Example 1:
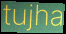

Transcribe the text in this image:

tujha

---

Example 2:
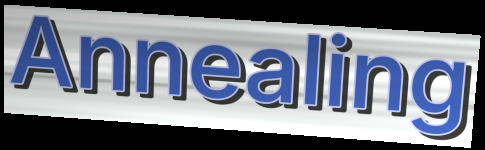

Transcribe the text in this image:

Annealing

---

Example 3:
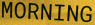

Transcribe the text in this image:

MORNING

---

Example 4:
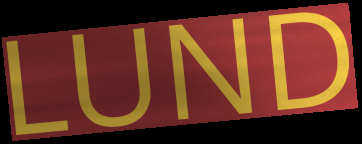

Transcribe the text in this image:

LUND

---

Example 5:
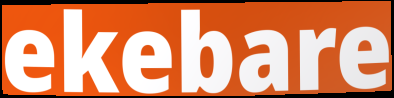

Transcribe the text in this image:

ekebare